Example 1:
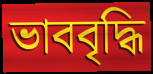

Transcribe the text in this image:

ভাববৃদ্ধি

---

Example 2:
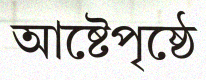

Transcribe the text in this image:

আষ্টেপৃষ্ঠে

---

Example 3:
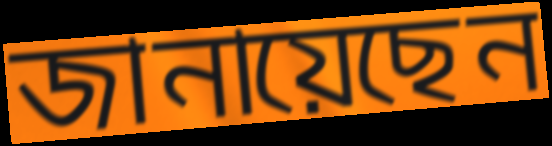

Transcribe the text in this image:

জানায়েছেন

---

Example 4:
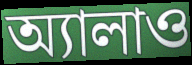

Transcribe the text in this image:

অ্যালাও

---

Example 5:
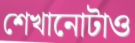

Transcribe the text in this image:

শেখানোটাও